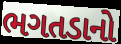
ભગતડાનો